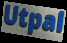
Utpal